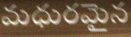
మధురమైన